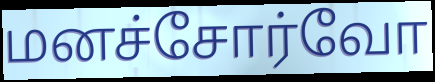
மனச்சோர்வோ